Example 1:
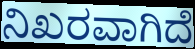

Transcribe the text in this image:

ನಿಖರವಾಗಿದೆ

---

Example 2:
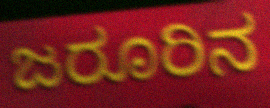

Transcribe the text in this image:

ಜರೂರಿನ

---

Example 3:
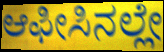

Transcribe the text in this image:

ಆಫೀಸಿನಲ್ಲೇ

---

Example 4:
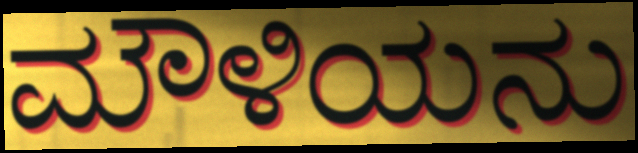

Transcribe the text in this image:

ಮೌಳಿಯನು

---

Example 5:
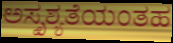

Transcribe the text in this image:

ಅಸ್ಪೃಶ್ಯತೆಯಂತಹ